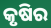
କୃଷିର